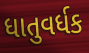
ધાતુવર્ધક